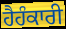
ਹੈਹੰਕਾਰੀ